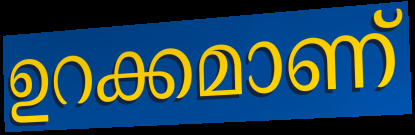
ഉറക്കമാണ്